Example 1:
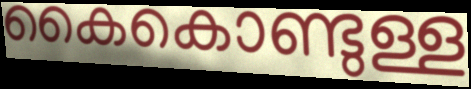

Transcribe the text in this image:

കൈകൊണ്ടുള്ള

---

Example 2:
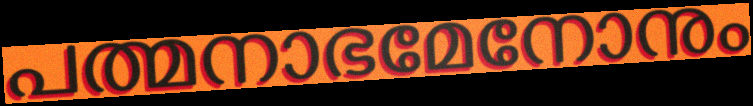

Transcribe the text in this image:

പത്മനാഭമേനോനും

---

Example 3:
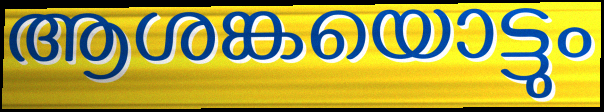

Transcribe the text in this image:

ആശങ്കയൊട്ടും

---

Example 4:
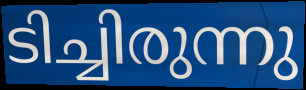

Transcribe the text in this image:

ടിച്ചിരുന്നു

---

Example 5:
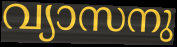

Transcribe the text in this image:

വ്യാസനു